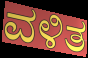
ವಳಿತ